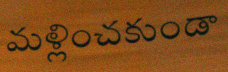
మళ్లించకుండా